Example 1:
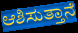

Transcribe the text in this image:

ಆಶಿಸುತ್ತಾನೆ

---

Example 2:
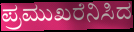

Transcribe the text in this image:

ಪ್ರಮುಖರೆನಿಸಿದ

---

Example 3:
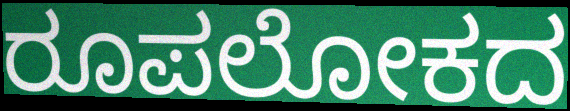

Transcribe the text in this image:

ರೂಪಲೋಕದ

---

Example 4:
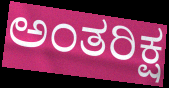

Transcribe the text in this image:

ಅಂತರಿಕ್ಷ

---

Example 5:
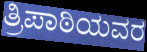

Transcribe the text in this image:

ತ್ರಿಪಾಠಿಯವರ